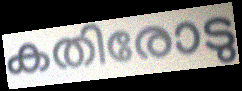
കതിരോടു